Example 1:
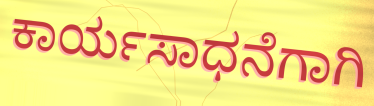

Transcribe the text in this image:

ಕಾರ್ಯಸಾಧನೆಗಾಗಿ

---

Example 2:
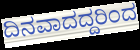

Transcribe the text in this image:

ದಿನವಾದದ್ದರಿಂದ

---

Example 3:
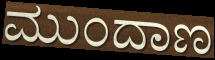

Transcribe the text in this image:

ಮುಂದಾಣ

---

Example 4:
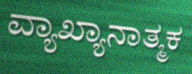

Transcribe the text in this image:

ವ್ಯಾಖ್ಯಾನಾತ್ಮಕ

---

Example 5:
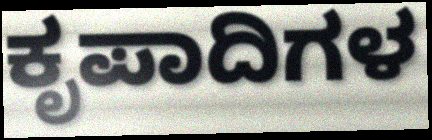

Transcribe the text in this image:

ಕೃಪಾದಿಗಳ